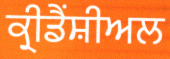
ਕ੍ਰੀਡੈਂਸ਼ੀਅਲ